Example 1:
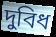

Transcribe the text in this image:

দুবিধ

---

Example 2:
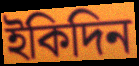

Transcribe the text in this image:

ইকিদিন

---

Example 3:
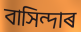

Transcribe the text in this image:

বাসিন্দাৰ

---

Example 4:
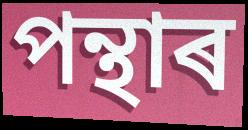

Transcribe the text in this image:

পন্থাৰ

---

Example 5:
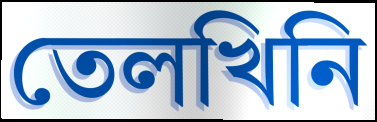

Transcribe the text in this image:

তেলখিনি